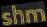
shm